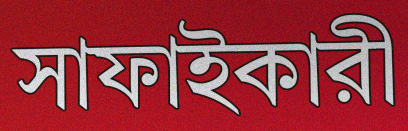
সাফাইকারী